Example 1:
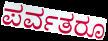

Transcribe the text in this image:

ಪರ್ವತರೂ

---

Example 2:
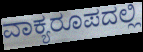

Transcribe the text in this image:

ವಾಕ್ಯರೂಪದಲ್ಲಿ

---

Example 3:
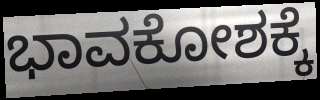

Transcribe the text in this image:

ಭಾವಕೋಶಕ್ಕೆ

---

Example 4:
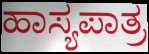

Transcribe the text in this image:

ಹಾಸ್ಯಪಾತ್ರ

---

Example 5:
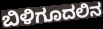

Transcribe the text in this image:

ಬಿಳಿಗೂದಲಿನ